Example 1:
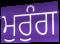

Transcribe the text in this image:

ਮੁਰੁੰਗ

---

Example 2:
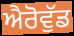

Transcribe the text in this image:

ਐਰੋਵੁੱਡ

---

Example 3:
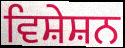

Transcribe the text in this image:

ਵਿਸ਼ੇਸ਼ਨ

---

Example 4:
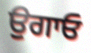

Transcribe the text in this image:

ਉਗਾਓ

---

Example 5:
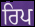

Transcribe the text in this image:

ਰਿਪ